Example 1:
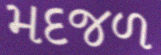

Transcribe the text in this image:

મદજળ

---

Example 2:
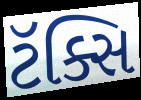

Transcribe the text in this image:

ટૅક્સિ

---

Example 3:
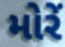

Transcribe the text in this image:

મોરેં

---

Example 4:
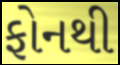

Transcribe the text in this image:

ફોનથી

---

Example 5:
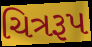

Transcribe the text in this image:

ચિત્રરૂપ